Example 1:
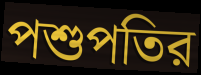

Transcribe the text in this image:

পশুপতির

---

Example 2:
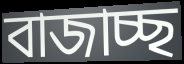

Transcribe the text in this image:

বাজাচ্ছ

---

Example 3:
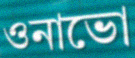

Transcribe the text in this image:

ওনাভো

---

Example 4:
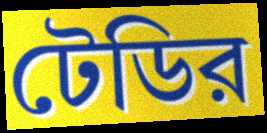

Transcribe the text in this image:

টেডির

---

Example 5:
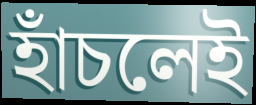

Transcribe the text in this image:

হাঁচলেই